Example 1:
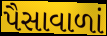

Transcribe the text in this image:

પૈસાવાળાં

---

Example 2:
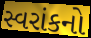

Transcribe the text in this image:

સ્વરાંકનો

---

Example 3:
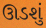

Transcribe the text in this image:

ઊડશું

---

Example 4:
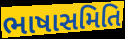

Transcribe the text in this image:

ભાષાસમિતિ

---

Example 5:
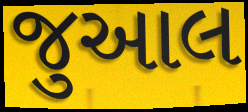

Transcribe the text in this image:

જુઆલ